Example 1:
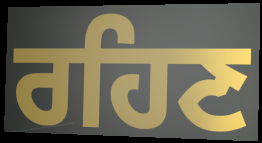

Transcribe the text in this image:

ਰਹਿਣ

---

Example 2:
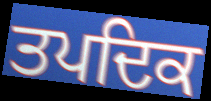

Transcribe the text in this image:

ਤਪਦਿਕ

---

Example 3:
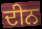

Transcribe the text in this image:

ਦੀਨ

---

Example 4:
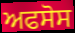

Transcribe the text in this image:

ਅਫਸੋਸ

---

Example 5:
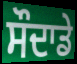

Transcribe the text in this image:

ਸੌਦਾਡੇ